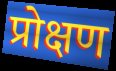
प्रोक्षण